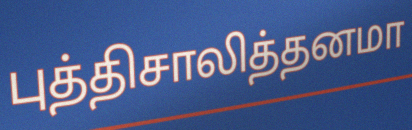
புத்திசாலித்தனமா